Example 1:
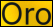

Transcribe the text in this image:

Oro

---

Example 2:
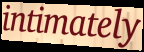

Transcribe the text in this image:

intimately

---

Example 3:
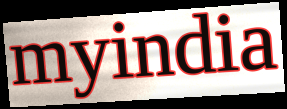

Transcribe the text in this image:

myindia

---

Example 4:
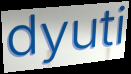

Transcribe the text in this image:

dyuti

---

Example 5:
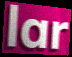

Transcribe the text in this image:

lar